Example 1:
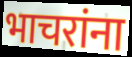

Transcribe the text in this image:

भाचरांना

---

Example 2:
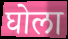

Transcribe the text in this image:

घोला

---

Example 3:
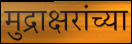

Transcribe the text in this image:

मुद्राक्षरांच्या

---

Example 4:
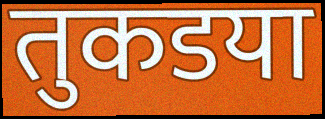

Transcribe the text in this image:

तुकडया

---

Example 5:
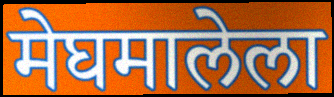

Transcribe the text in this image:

मेघमालेला